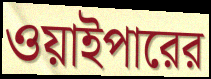
ওয়াইপারের